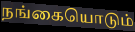
நங்கையொடும்